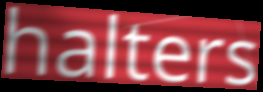
halters